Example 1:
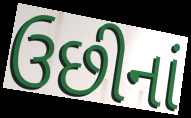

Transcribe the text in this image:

ઉછીનાં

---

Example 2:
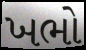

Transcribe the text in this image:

ખભો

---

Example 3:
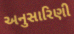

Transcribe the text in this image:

અનુસારિણી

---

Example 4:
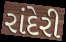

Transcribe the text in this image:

રાંદેરી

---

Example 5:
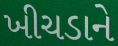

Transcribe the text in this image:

ખીચડાને